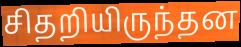
சிதறியிருந்தன